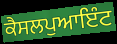
ਕੈਸਲਪੁਆਇੰਟ